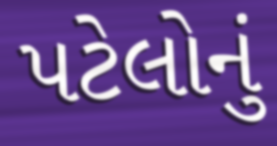
પટેલોનું